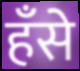
हँसे